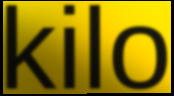
kilo